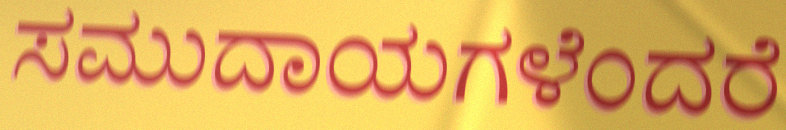
ಸಮುದಾಯಗಳೆಂದರೆ